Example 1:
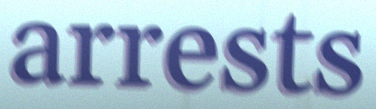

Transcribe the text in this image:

arrests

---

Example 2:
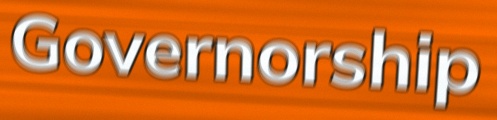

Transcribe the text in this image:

Governorship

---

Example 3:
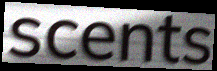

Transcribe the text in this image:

scents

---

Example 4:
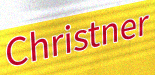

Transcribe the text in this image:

Christner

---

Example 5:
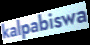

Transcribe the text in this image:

kalpabiswa